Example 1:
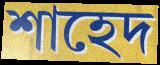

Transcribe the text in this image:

শাহেদ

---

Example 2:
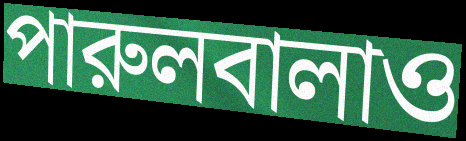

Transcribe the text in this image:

পারুলবালাও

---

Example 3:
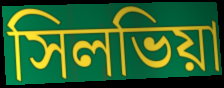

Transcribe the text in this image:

সিলভিয়া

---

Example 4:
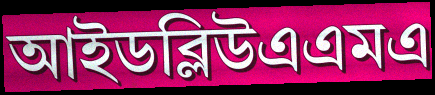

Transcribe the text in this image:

আইডব্লিউএএমএ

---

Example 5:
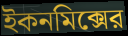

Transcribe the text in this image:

ইকনমিক্সের